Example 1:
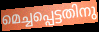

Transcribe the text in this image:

മെച്ചപ്പെട്ടതിനു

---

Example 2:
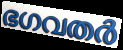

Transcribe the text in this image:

ഭഗവതർ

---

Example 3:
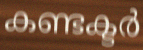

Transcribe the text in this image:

കണ്ടക്ടർ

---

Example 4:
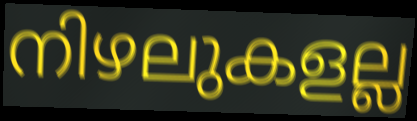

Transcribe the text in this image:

നിഴലുകളല്ല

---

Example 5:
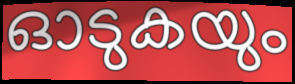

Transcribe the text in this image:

ഓടുകയും